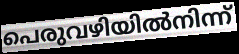
പെരുവഴിയിൽനിന്ന്